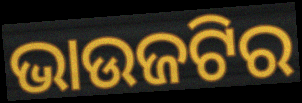
ଭାଉଜଟିର